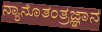
ನ್ಯಾನೊತಂತ್ರಜ್ಞಾನ